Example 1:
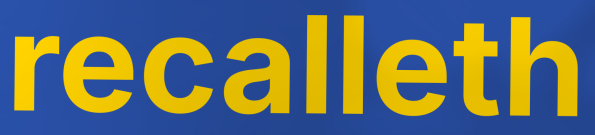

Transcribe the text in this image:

recalleth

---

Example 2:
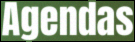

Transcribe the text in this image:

Agendas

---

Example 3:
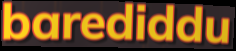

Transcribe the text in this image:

barediddu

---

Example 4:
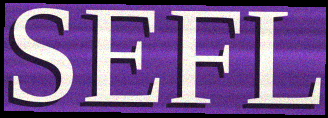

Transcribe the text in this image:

SEFL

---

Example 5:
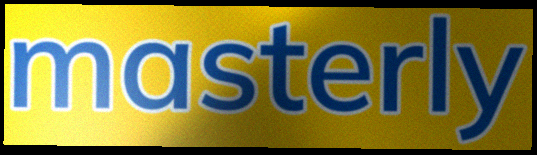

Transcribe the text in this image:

masterly